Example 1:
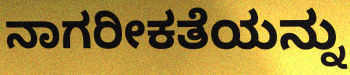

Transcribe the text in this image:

ನಾಗರೀಕತೆಯನ್ನು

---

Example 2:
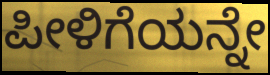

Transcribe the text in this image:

ಪೀಳಿಗೆಯನ್ನೇ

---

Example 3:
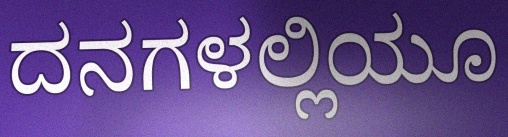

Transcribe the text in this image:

ದನಗಳಲ್ಲಿಯೂ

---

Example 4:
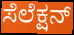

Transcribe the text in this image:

ಸೆಲೆಕ್ಷನ್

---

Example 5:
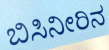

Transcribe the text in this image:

ಬಿಸಿನೀರಿನ